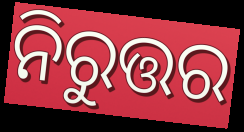
ନିରୁତ୍ତର